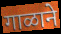
गाळाने